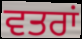
ਵਤਰਾਂ